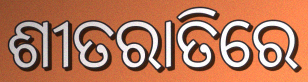
ଶୀତରାତିରେ